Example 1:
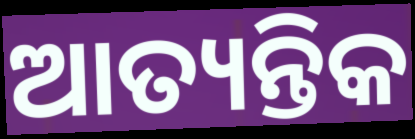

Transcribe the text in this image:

ଆତ୍ୟନ୍ତିକ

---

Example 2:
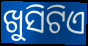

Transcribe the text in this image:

ଖୁସିଟିଏ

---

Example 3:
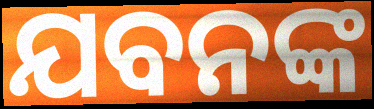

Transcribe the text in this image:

ଯବନଙ୍କ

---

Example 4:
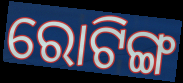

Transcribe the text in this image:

ରୋଟିଙ୍ଗ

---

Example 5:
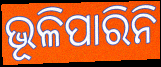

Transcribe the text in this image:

ଭୂଳିପାରିନି